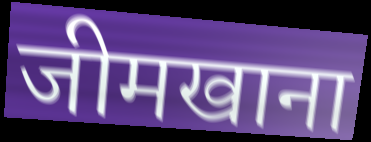
जीमखाना